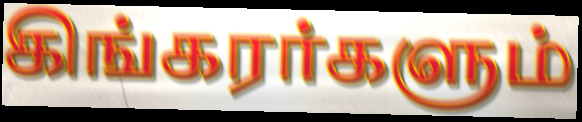
கிங்கரர்களும்